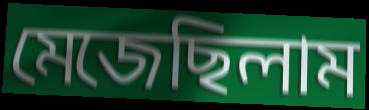
মেজেছিলাম